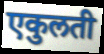
एकुलती